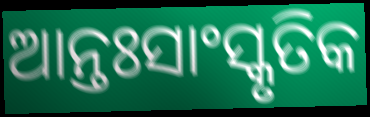
ଆନ୍ତଃସାଂସ୍କୃତିକ